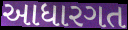
આધારગત